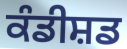
ਕੰਡੀਸ਼ਡ